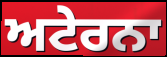
ਅਟੇਰਨਾ